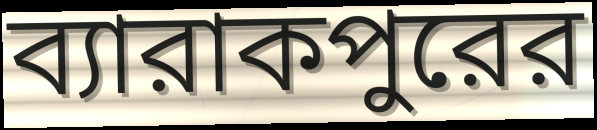
ব্যারাকপুরের